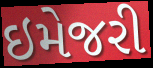
ઇમેજરી